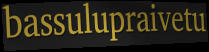
bassulupraivetu